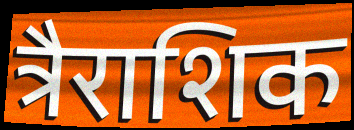
त्रैराशिक